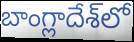
బాంగ్లాదేశ్‌లో